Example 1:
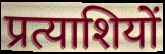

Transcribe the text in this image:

प्रत्याशियों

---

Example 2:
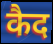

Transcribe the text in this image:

कैद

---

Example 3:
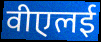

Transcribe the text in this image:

वीएलई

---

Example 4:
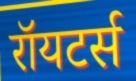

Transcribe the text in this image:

रॉयटर्स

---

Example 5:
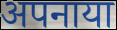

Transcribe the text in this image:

अपनाया